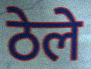
ठेले